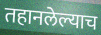
तहानलेल्याच